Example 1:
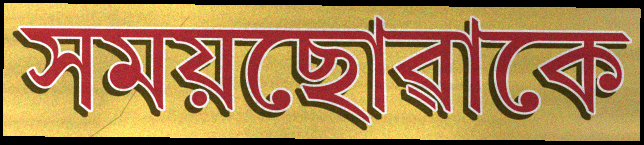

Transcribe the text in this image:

সময়ছোৱাকে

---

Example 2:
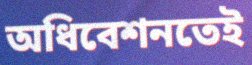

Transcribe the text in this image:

অধিবেশনতেই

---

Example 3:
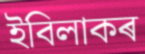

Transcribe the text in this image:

ইবিলাকৰ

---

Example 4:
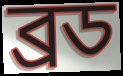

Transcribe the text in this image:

ব্ৰড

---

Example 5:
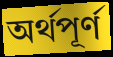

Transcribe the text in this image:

অৰ্থপূৰ্ণ